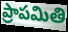
ప్రాపమితి